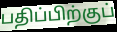
பதிப்பிற்குப்